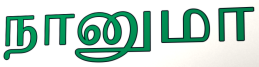
நானுமா